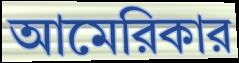
আমেরিকার